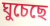
ঘুচেছে